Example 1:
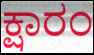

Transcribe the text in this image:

ಕ್ಷಾರಂ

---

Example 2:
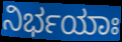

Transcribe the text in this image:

ನಿರ್ಭಯಾಃ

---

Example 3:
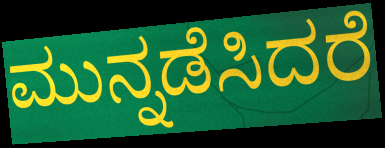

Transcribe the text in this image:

ಮುನ್ನಡೆಸಿದರೆ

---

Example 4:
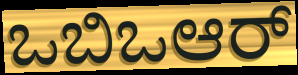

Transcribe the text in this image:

ಒಬಿಒಆರ್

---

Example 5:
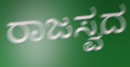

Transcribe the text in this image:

ರಾಜಸ್ವದ